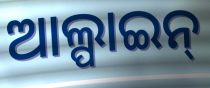
ଆଲ୍ପାଇନ୍